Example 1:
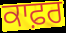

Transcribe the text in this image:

ਕਾਫ਼ਰ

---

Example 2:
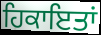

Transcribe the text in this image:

ਹਿਕਾਇਤਾਂ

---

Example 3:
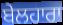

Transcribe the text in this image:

ਬੇਲਹਾਰਾ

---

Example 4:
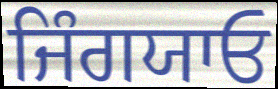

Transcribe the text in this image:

ਜਿੰਗਯਾਓ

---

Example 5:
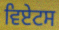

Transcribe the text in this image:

ਵਿਏਟਸ